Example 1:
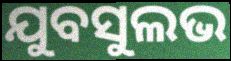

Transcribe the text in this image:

ଯୁବସୁଲଭ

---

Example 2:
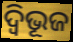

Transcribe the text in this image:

ଦ୍ବିଭୂଜ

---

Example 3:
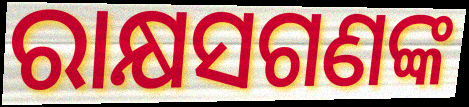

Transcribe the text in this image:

ରାକ୍ଷସଗଣଙ୍କ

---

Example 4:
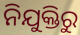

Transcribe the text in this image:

ନିଯୁକ୍ତିରୁ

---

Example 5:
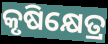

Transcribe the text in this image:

କୃଷିକ୍ଷେତ୍ର